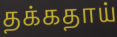
தக்கதாய்